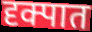
दृक्पात